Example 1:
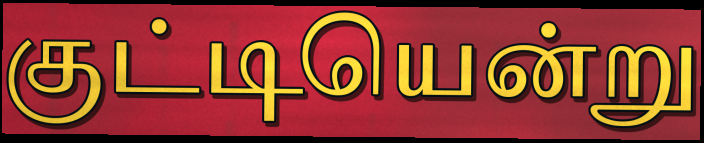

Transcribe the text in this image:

குட்டியென்று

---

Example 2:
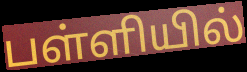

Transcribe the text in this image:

பள்ளியில்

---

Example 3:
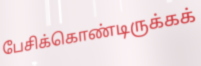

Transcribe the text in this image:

பேசிக்கொண்டிருக்கக்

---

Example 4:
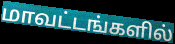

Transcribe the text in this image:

மாவட்டங்களில்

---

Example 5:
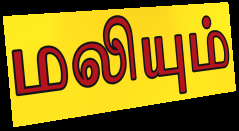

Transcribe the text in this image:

மலியும்